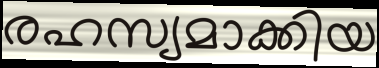
രഹസ്യമാക്കിയ